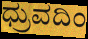
ಧ್ರುವದಿಂ